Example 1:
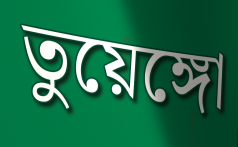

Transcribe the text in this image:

তুয়েঙ্গো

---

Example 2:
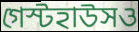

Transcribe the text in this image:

গেস্টহাউসও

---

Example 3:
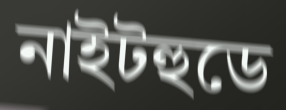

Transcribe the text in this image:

নাইটহুডে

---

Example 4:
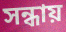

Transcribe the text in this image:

সন্ধায়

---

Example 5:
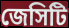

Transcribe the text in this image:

জেসিটি